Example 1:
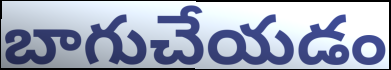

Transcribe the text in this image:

బాగుచేయడం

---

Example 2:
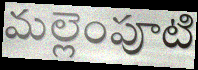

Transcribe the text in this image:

మల్లెంపూటి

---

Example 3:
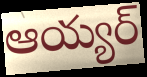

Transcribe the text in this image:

ఆయ్యర్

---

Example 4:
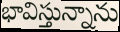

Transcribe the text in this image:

భావిస్తున్నాను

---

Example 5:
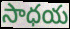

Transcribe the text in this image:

సాధయ